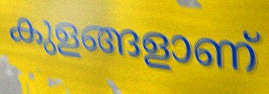
കുളങ്ങളാണ്